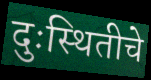
दुःस्थितीचे